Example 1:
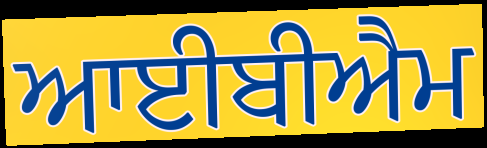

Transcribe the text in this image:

ਆਈਬੀਐਮ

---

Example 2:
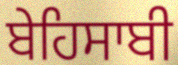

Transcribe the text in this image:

ਬੇਹਿਸਾਬੀ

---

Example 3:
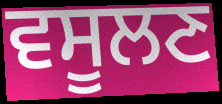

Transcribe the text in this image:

ਵਸੂਲਣ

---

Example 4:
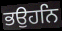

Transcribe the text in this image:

ਭਉਹਨਿ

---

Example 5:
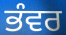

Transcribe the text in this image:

ਭੰਵਰ